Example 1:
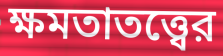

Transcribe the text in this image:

ক্ষমতাতত্ত্বের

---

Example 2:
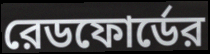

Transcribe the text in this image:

রেডফোর্ডের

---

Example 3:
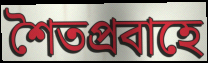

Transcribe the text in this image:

শৈতপ্রবাহে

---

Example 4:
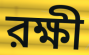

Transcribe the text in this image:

রক্ষী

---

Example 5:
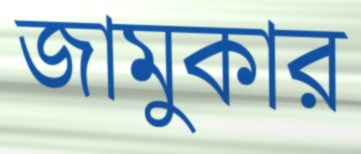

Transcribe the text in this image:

জামুকার